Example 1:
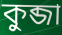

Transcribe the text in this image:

কুব্জা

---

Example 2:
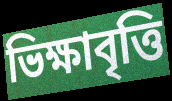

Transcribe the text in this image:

ভিক্ষাবৃত্তি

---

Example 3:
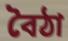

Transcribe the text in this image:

বৈঠা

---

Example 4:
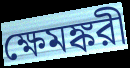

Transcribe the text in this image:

ক্ষেমঙ্করী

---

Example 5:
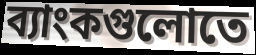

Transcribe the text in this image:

ব্যাংকগুলোতে